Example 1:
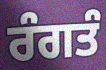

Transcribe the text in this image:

ਰੰਗਤੰ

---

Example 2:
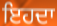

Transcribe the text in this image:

ਇਹਦਾ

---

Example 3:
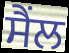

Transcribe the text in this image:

ਸੈਂਲ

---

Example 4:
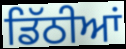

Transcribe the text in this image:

ਡਿੱਠੀਆਂ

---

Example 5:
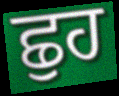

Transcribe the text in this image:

ਛੁਹ